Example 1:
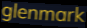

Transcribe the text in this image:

glenmark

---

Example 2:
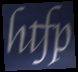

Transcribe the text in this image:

htfp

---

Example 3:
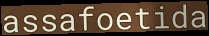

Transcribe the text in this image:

assafoetida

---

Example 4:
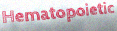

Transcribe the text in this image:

Hematopoietic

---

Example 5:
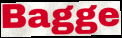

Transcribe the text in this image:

Bagge